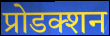
प्रोडक्‍शन